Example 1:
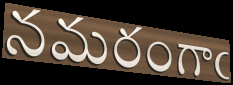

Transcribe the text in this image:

నమరంగాఁ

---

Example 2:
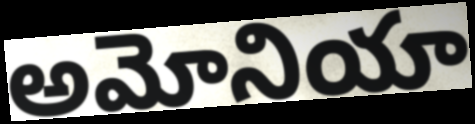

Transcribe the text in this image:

అమోనియా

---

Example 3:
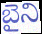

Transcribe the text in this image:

బైని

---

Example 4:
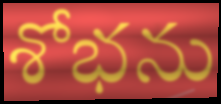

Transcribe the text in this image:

శోభను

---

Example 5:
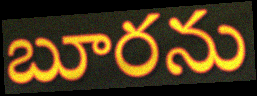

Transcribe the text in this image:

బూరను